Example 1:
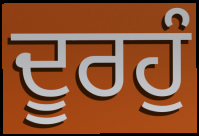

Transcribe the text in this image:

ਦੂਰਹੁੰ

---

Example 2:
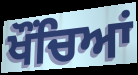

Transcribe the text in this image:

ਖੌਂਚਿਆਂ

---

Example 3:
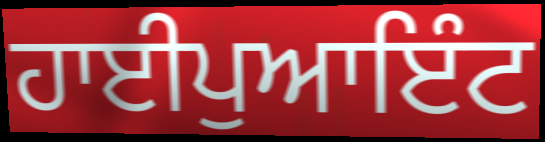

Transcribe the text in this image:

ਹਾਈਪੁਆਇੰਟ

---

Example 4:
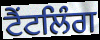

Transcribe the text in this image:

ਟੈਂਟਲਿੰਗ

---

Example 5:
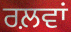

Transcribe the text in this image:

ਰਲ਼ਵਾਂ